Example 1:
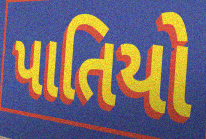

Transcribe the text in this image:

પાતિયો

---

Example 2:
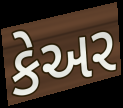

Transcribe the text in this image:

કેઅર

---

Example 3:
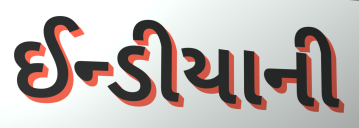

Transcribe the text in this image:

ઈન્ડીયાની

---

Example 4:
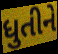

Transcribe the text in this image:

ધુતીને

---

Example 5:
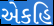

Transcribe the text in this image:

એકહિ